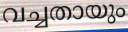
വച്ചതായും